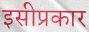
इसीप्रकार